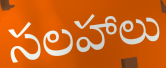
సలహాలు